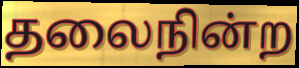
தலைநின்ற